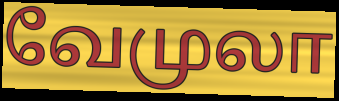
வேமுலா